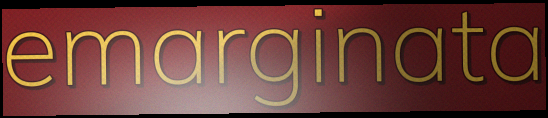
emarginata